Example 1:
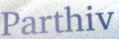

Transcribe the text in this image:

Parthiv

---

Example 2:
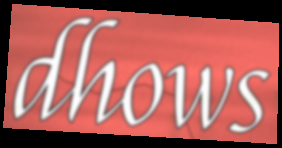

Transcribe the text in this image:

dhows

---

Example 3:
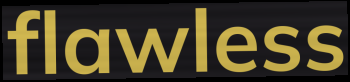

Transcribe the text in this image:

flawless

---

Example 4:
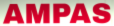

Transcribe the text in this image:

AMPAS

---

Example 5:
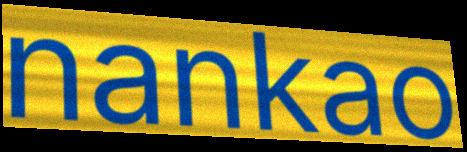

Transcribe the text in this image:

nankao